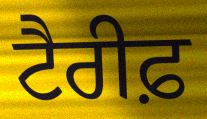
ਟੈਰੀਫ਼